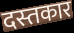
दस्‍तकार